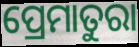
ପ୍ରେମାତୁରା